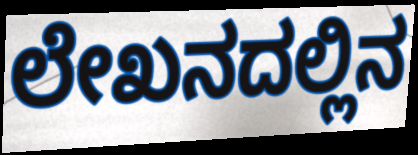
ಲೇಖನದಲ್ಲಿನ